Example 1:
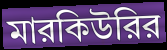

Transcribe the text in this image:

মারকিউরির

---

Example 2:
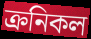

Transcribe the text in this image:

ক্রনিকল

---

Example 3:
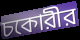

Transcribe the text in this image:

চকোরীর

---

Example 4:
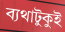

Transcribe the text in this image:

ব্যথাটুকুই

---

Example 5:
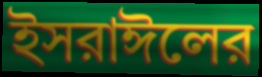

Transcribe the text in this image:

ইসরাঈলের